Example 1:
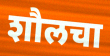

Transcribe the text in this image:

शौलचा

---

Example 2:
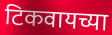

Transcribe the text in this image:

टिकवायच्या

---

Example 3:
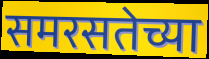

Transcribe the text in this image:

समरसतेच्या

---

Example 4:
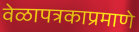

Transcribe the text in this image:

वेळापत्रकाप्रमाणे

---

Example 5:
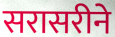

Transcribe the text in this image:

सरासरीने